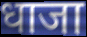
धाजा